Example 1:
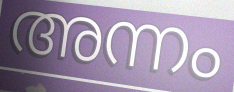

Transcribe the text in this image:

അന്നം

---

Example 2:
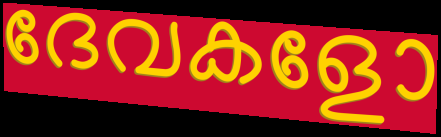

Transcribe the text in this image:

ദേവകളോ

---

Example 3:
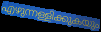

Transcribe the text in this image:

എഴുന്നള്ളിക്കുകയും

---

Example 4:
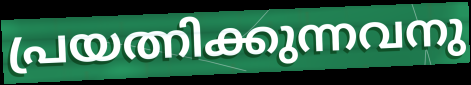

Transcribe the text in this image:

പ്രയത്നിക്കുന്നവനു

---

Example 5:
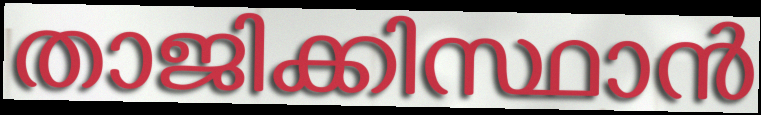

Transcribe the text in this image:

താജിക്കിസ്ഥാൻ